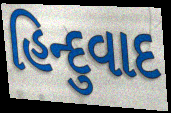
હિન્દુવાદ